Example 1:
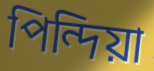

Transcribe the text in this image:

পিন্দিয়া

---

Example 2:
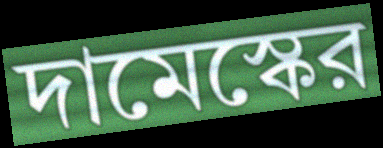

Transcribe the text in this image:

দামেস্কের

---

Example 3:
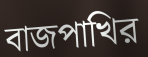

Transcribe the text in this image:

বাজপাখির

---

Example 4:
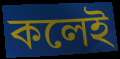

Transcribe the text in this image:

কলেই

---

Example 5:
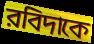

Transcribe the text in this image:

রবিদাকে